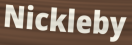
Nickleby